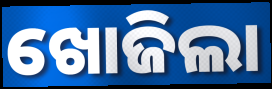
ଖୋଜିଲା